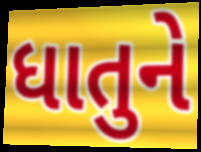
ધાતુને